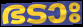
ഭടാഃ